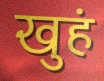
खुहं